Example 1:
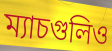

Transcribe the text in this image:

ম্যাচগুলিও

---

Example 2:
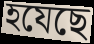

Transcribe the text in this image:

হযেছে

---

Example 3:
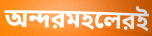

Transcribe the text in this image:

অন্দরমহলেরই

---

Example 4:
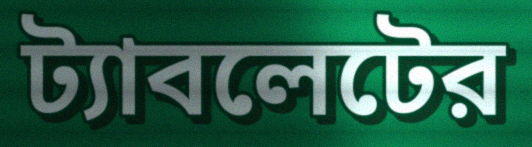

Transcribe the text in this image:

ট্যাবলেটের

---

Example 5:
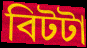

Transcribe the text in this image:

বিটটা